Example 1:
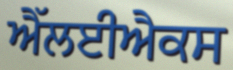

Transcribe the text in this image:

ਐੱਲਈਐਕਸ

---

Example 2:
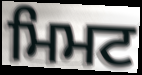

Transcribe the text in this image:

ਮਿਮਟ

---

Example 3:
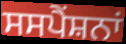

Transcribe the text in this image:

ਸਸਪੈਂਸ਼ਨਾਂ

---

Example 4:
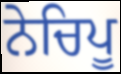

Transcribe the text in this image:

ਨੇਚਿਪੂ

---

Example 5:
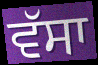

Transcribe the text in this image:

ਵੱਸਾ